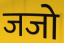
जजो